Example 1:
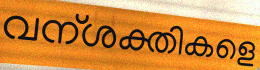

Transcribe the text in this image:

വന്ശക്തികളെ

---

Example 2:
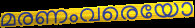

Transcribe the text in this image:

മരണംവരെയോ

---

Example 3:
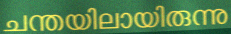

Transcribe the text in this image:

ചന്തയിലായിരുന്നു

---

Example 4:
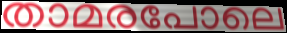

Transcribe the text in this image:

താമരപോലെ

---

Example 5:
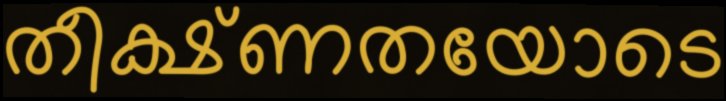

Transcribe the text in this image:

തീക്ഷ്ണതയോടെ